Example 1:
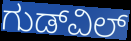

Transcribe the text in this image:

ಗುಡ್‌ವಿಲ್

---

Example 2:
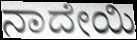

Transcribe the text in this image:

ನಾದೇಯಿ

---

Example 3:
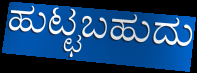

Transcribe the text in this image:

ಹುಟ್ಟಬಹುದು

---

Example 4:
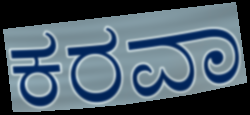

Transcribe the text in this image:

ಕರವಾ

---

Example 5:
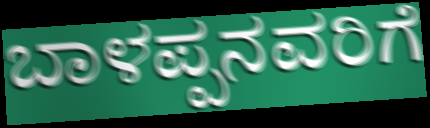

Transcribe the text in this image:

ಬಾಳಪ್ಪನವರಿಗೆ